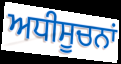
ਅਧੀਸੂਚਨਾਂ